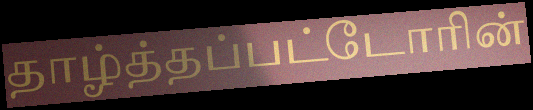
தாழ்த்தப்பட்டோரின்